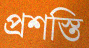
প্রশস্তি